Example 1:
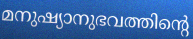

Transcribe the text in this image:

മനുഷ്യാനുഭവത്തിന്റെ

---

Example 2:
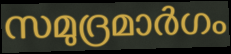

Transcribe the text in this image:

സമുദ്രമാർഗം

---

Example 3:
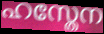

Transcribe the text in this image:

ഹസ്തേന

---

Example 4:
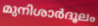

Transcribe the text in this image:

മുനിശാർദൂലം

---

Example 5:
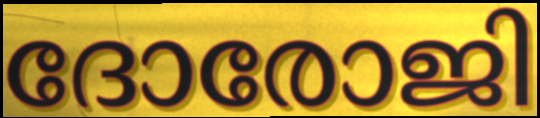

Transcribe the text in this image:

ദോരോജി